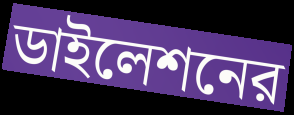
ডাইলেশনের